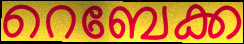
റെബേക്ക